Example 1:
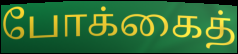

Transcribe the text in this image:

போக்கைத்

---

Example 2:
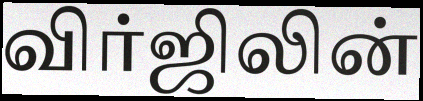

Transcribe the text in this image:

விர்ஜிலின்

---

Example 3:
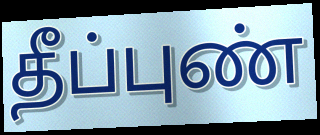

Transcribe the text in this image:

தீப்புண்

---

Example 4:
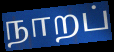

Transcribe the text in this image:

நாறப்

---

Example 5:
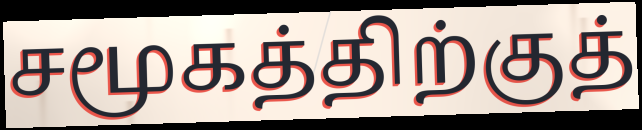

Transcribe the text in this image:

சமூகத்திற்குத்